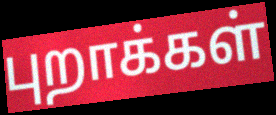
புறாக்கள்